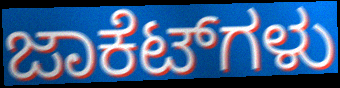
ಜಾಕೆಟ್‌ಗಳು